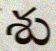
శు